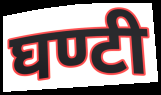
घण्टी